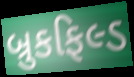
બ્રુકફિલ્ડ